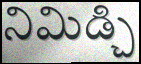
నిమిడ్చి